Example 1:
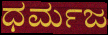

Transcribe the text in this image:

ಧರ್ಮಜ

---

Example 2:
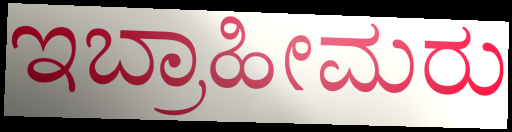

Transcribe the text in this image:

ಇಬ್ರಾಹೀಮರು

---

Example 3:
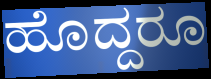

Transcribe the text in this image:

ಹೊದ್ದರೂ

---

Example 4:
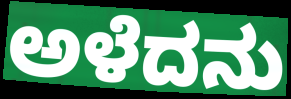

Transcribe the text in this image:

ಅಳೆದನು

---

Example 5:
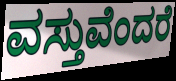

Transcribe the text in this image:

ವಸ್ತುವೆಂದರೆ